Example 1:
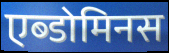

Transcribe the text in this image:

एब्डोमिनस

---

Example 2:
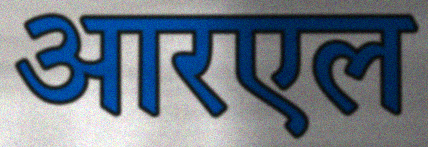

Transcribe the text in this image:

आरएल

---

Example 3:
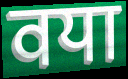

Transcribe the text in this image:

वया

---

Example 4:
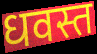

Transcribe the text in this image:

धवस्त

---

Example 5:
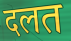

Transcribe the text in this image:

दलत